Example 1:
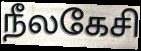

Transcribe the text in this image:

நீலகேசி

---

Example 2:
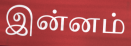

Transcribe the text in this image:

இன்னம்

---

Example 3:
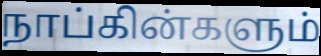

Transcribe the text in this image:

நாப்கின்களும்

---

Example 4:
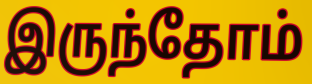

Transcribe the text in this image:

இருந்தோம்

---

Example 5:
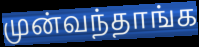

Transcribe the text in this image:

முன்வந்தாங்க